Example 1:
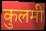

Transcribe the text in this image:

कुलमी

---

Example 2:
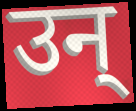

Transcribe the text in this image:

उन्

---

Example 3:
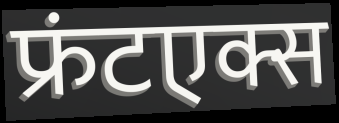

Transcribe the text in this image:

फ्रंटएक्स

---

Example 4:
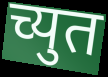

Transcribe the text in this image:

च्‍युत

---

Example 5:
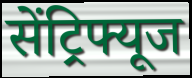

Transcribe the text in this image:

सेंट्रिफ्यूज